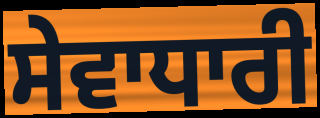
ਸੇਵਾਧਾਰੀ